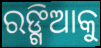
ରଙ୍ଗିଆକୁ